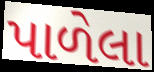
પાળેલા